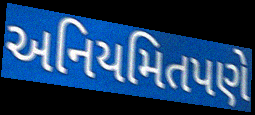
અનિયમિતપણે